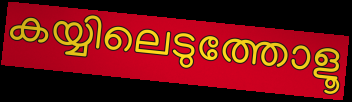
കയ്യിലെടുത്തോളൂ